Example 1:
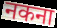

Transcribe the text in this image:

नकना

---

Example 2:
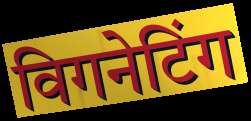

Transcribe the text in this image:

विगनेटिंग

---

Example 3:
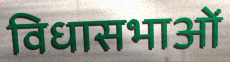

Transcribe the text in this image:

विधासभाओं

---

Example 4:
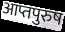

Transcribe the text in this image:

आप्तपुरुष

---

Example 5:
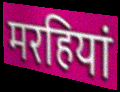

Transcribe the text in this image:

मरहियां